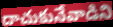
దాచుకునేవాడిని